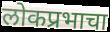
लोकप्रभाचा